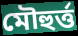
মৌহুৰ্ত্ত